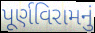
પૂર્ણવિરામનું